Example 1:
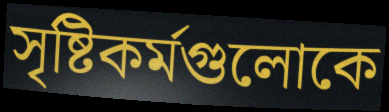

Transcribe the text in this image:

সৃষ্টিকর্মগুলোকে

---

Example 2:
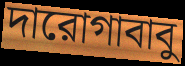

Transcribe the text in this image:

দারোগাবাবু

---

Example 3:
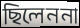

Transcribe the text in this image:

ছিলেননা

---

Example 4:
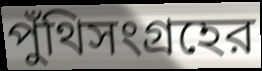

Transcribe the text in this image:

পুঁথিসংগ্রহের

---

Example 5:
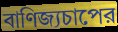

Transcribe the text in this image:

বাণিজ্যচাপের